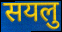
सयलु